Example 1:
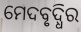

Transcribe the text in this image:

ମେଦବୃଦ୍ଧିର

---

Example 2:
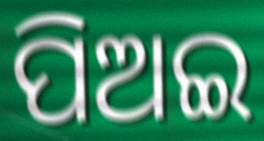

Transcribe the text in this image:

ପିଅଇ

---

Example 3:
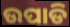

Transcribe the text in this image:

ଉପାଡି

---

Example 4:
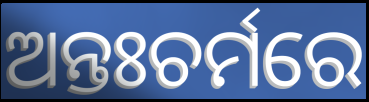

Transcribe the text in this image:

ଅନ୍ତଃଚର୍ମରେ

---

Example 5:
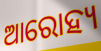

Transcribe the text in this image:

ଆରୋହ୍ୟ